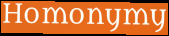
Homonymy